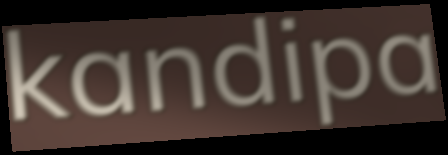
kandipa